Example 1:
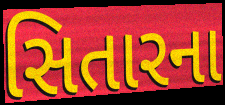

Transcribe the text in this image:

સિતારના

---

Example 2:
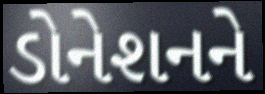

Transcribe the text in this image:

ડોનેશનને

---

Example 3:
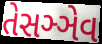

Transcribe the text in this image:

તેસઞ્ઞેવ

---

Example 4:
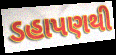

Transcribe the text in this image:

ડહાપણથી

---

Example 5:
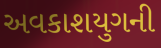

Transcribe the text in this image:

અવકાશયુગની